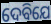
ଦେବିଯେ